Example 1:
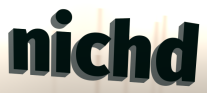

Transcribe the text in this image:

nichd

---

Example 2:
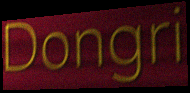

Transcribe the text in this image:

Dongri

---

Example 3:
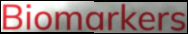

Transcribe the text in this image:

Biomarkers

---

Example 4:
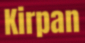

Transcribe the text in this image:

Kirpan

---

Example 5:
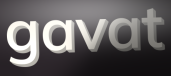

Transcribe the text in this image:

gavat